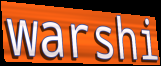
warshi